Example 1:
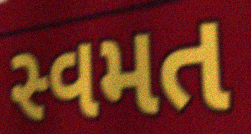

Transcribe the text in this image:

સ્વમત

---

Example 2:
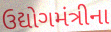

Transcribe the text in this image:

ઉદ્યોગમંત્રીના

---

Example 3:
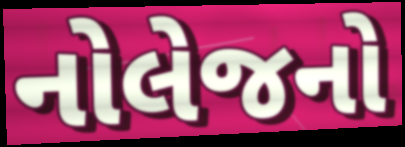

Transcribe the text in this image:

નોલેજનો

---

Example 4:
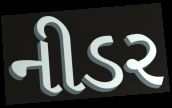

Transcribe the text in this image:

નીડર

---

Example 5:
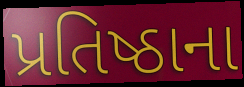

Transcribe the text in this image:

પ્રતિષ્ઠાના